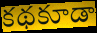
కథకూడా